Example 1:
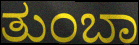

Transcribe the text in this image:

ತುಂಬಾ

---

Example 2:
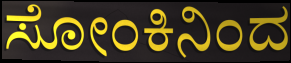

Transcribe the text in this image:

ಸೋಂಕಿನಿಂದ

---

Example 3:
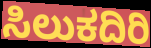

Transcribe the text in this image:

ಸಿಲುಕದಿರಿ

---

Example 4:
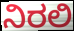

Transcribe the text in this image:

ನಿರಲಿ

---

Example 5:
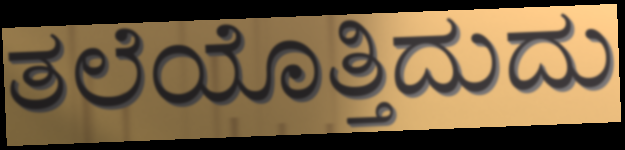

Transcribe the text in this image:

ತಲೆಯೊತ್ತಿದುದು